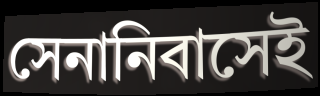
সেনানিবাসেই